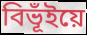
বিভূঁইয়ে